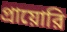
প্রায়োরি